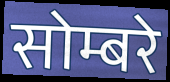
सोम्बरे